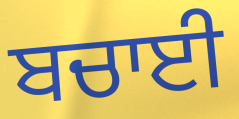
ਬਚਾਈ